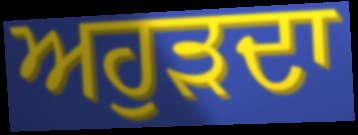
ਅਹੁੜਦਾ